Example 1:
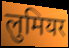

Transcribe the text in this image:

लुमियर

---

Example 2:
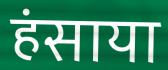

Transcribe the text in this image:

हंसाया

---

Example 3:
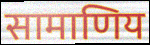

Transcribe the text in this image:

सामाणिय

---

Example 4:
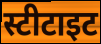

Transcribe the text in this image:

स्टीटाइट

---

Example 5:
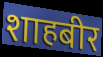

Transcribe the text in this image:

शाहबीर